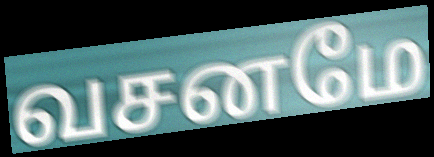
வசனமே